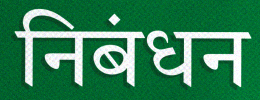
निबंधन